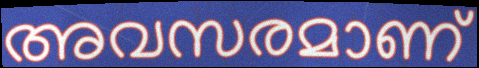
അവസരമാണ്